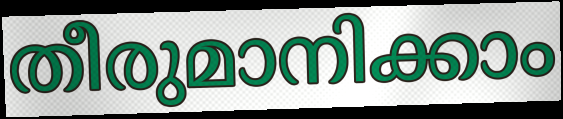
തീരുമാനിക്കാം